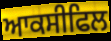
ਆਕਸੀਫਿਲ